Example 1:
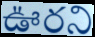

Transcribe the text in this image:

ఊరని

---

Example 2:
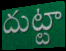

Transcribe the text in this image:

దుట్టా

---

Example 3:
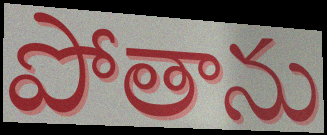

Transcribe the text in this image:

పోతాను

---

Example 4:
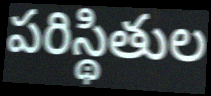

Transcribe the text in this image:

పరిస్థితుల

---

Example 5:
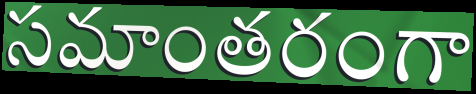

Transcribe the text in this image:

సమాంతరంగా